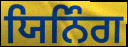
ਯਿਨਿੰਗ